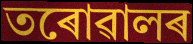
তৰোৱালৰ